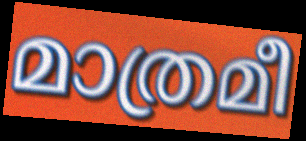
മാത്രമീ